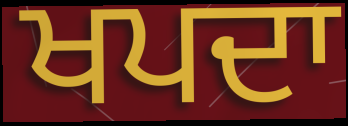
ਖਪਦਾ